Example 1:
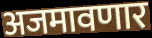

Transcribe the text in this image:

अजमावणार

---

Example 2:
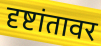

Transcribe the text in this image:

दृष्टांतावर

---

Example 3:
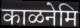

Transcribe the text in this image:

काळनेमि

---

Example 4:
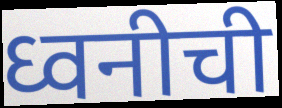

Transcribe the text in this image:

ध्वनीची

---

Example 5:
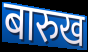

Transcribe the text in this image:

बारुख